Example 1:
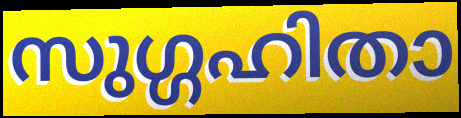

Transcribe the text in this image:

സുഗ്ഗഹിതാ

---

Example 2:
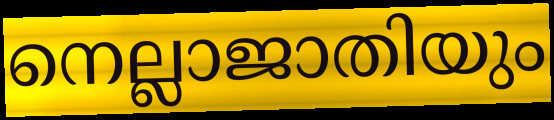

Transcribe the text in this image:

നെല്ലാജാതിയും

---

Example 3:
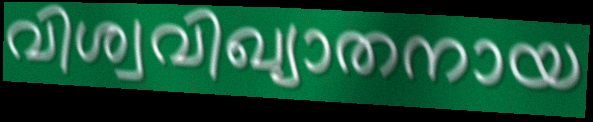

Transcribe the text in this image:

വിശ്വവിഖ്യാതനായ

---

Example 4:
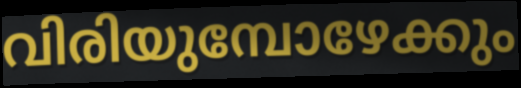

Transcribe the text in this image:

വിരിയുമ്പോഴേക്കും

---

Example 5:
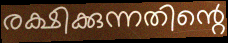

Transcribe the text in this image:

രക്ഷിക്കുന്നതിന്റെ